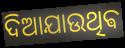
ଦିଆଯାଉଥିଵ